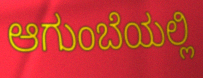
ಆಗುಂಬೆಯಲ್ಲಿ